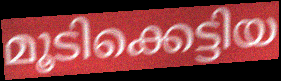
മൂടിക്കെട്ടിയ